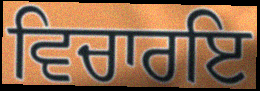
ਵਿਚਾਰਇ